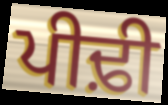
ਪੀਢ਼ੀ